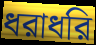
ধরাধরি